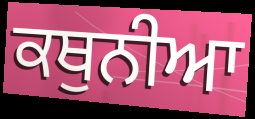
ਕਥੁਨੀਆ